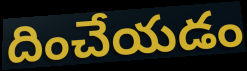
దించేయడం